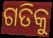
ଗତିକୁ